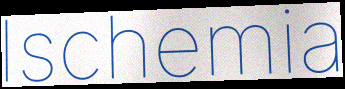
Ischemia